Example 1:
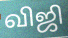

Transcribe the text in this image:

விஜி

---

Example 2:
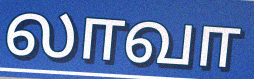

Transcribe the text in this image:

லாவா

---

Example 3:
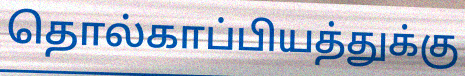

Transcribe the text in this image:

தொல்காப்பியத்துக்கு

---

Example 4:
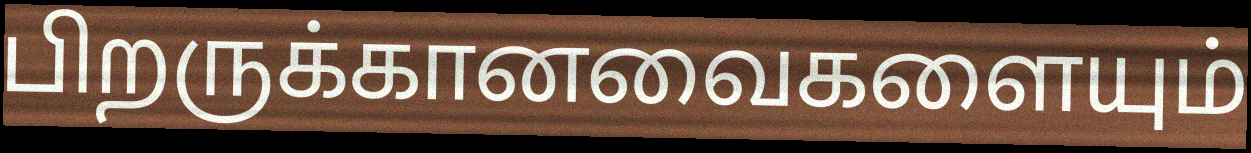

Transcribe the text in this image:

பிறருக்கானவைகளையும்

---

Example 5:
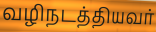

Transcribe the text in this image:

வழிநடத்தியவர்